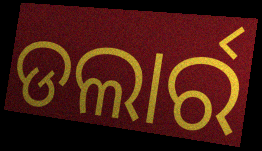
ଡଲାର୍ର